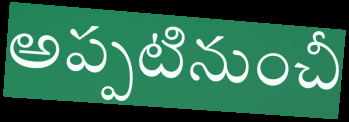
అప్పటినుంచీ